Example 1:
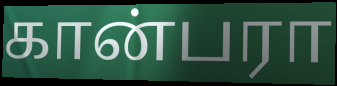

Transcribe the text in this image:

கான்பரா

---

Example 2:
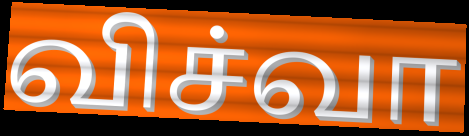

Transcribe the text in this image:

விச்வா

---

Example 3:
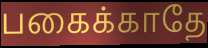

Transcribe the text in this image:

பகைக்காதே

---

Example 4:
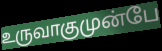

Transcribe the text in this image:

உருவாகுமுன்பே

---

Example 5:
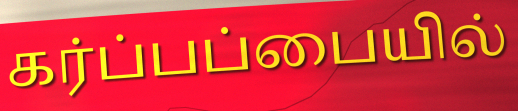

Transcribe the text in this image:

கர்ப்பப்பையில்